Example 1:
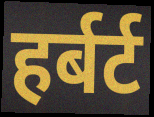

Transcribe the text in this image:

हर्बर्ट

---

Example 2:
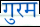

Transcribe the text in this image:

गुरम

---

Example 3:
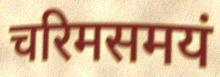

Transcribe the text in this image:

चरिमसमयं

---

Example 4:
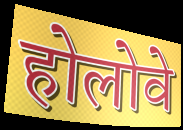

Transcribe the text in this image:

होलोवे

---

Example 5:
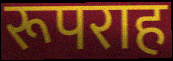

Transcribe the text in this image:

रूपराह